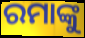
ରମାଙ୍କୁ